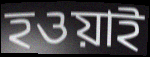
হওয়াই